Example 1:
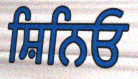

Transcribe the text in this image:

ਸ਼ਿਨਿਓ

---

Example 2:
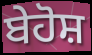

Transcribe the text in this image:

ਬੇਹੋਸ਼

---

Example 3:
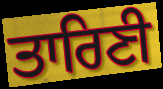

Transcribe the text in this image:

ਤਾਰਿਣੀ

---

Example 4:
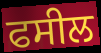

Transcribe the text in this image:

ਫਸੀਲ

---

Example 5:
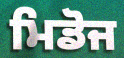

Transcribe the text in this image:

ਮਿਡੋਜ